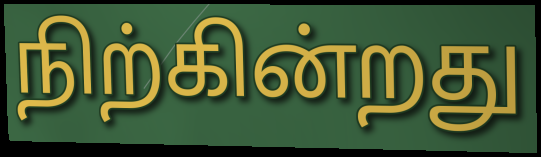
நிற்கின்றது